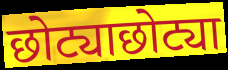
छोट्याछोट्या